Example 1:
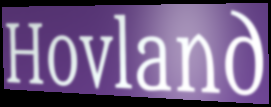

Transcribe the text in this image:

Hovland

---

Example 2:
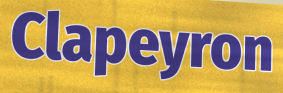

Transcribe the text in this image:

Clapeyron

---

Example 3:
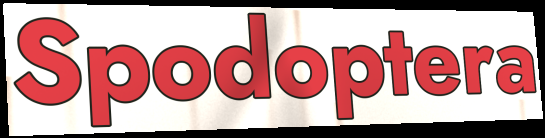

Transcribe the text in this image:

Spodoptera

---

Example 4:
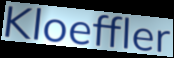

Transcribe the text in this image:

Kloeffler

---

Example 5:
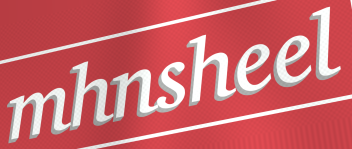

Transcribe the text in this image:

mhnsheel